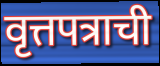
वृत्तपत्राची